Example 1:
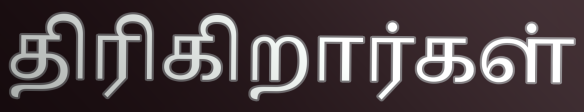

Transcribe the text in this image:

திரிகிறார்கள்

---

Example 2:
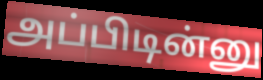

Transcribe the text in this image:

அப்பிடின்னு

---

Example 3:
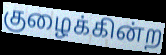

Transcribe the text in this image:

குழைக்கின்ற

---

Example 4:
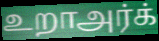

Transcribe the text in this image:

உறாஅர்க்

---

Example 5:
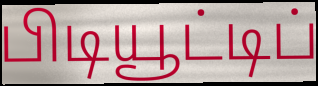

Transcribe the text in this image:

பிடியூட்டிப்